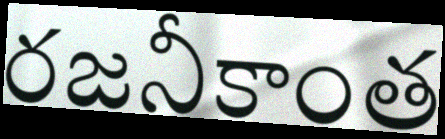
రజనీకాంత